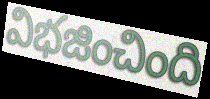
విభజించింది